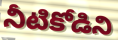
నీటికోడిని